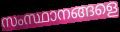
സംസ്ഥാനങ്ങളെ